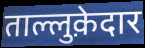
ताल्लुक़ेदार